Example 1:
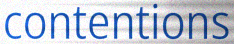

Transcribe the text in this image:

contentions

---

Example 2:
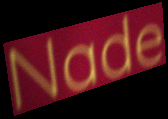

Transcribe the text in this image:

Nade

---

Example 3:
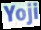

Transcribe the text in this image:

Yoji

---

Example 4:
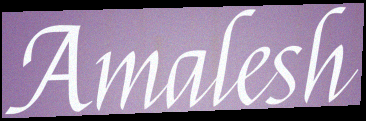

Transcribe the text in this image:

Amalesh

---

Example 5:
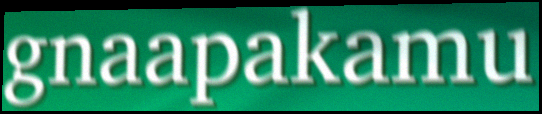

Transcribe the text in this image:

gnaapakamu